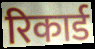
रिकार्ड